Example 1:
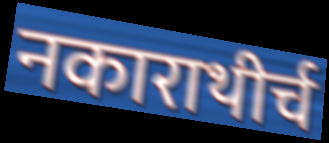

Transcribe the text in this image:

नकाराथीर्च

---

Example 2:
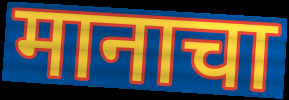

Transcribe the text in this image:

मानाचा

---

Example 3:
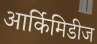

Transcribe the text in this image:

आर्किमिडीज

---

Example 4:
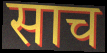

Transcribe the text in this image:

साच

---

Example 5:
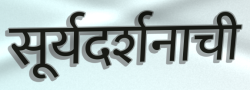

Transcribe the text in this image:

सूर्यदर्शनाची